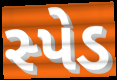
સ્પેડ